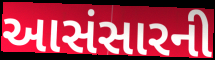
આસંસારની